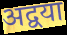
अद्वया